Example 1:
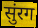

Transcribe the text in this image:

सुंरग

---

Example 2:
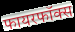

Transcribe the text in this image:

फायरफॉक्स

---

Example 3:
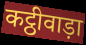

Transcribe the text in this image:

कट्ठीवाड़ा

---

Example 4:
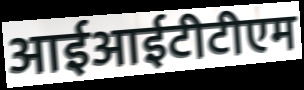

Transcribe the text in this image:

आईआईटीटीएम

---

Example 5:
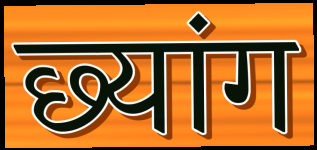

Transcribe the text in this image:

छ्यांग